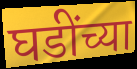
घडींच्या